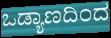
ಒಡ್ಯಾಣದಿಂದ